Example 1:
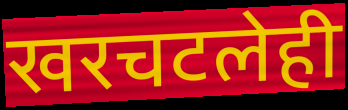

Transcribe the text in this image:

खरचटलेही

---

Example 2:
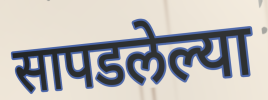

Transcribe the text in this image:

सापडलेल्या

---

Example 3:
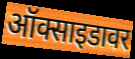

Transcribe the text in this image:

ऑक्साइडावर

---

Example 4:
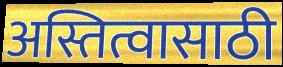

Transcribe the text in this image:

अस्तित्वासाठी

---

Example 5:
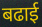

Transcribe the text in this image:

बढाई